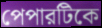
পেপারটিকে